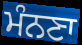
ਮੰਨਣਾ